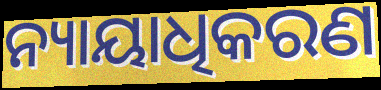
ନ୍ୟାୟାଧିକରଣ